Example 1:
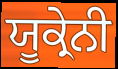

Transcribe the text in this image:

ਯੂਕ੍ਰੇਨੀ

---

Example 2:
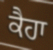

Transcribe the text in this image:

ਕੈਹਾ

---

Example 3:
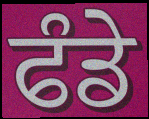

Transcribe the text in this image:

ਫੰਡੇ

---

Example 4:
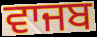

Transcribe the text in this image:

ਵਾਜਬ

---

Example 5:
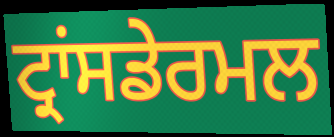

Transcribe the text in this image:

ਟ੍ਰਾਂਸਡੇਰਮਲ